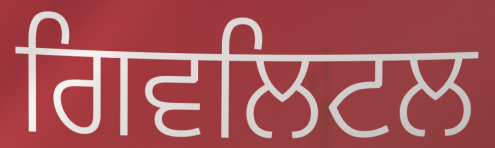
ਗਿਵਲਿਟਲ